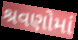
શ્રવણોમાં